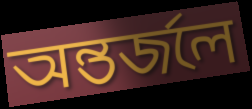
অন্তর্জলে